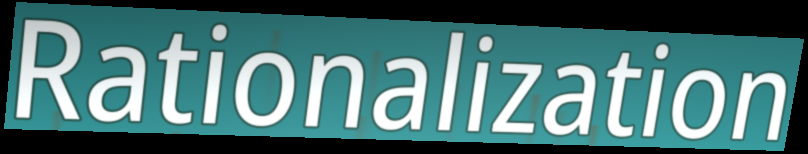
Rationalization